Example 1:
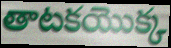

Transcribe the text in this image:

తాటకయొక్క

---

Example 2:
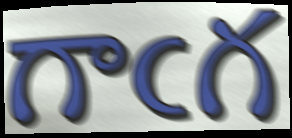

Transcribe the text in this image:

గాఁగ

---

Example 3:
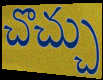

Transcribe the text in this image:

చొచ్చు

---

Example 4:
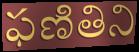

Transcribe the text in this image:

ఫణితిని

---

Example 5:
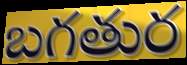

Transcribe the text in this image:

బగతుర